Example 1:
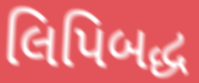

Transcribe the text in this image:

લિપિબદ્ધ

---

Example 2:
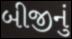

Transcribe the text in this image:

બીજીનું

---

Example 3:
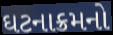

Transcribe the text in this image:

ઘટનાક્રમનો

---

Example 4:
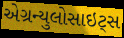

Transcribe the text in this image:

એગ્રન્યુલોસાઇટ્સ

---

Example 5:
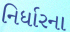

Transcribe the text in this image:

નિર્ધારના